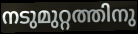
നടുമുറ്റത്തിനു